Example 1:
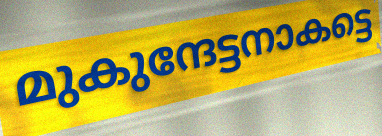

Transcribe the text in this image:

മുകുന്ദേട്ടനാകട്ടെ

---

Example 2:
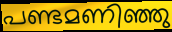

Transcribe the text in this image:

പണ്ടമണിഞ്ഞു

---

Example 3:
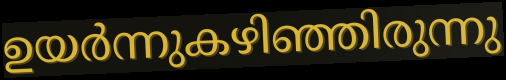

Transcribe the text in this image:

ഉയർന്നുകഴിഞ്ഞിരുന്നു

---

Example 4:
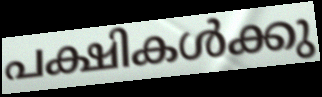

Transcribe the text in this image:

പക്ഷികൾക്കു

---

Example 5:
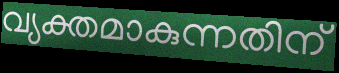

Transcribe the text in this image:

വ്യക്തമാകുന്നതിന്